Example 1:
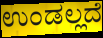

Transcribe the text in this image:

ಉಂಡಲ್ಲದೆ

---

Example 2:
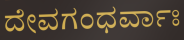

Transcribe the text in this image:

ದೇವಗಂಧರ್ವಾಃ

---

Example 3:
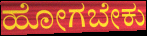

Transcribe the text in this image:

ಹೋಗಬೇಕು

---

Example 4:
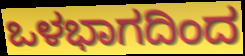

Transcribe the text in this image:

ಒಳಭಾಗದಿಂದ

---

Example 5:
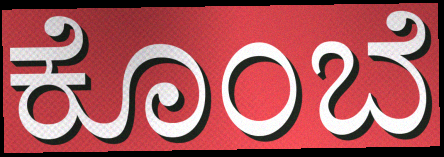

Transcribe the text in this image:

ಕೊಂಬೆ